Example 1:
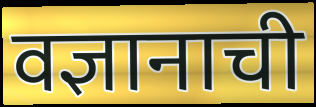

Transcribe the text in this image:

वज्ञानाची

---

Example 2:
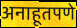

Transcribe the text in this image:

अनाहूतपणे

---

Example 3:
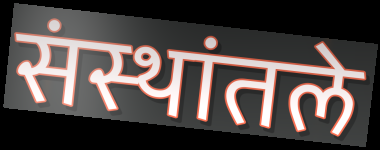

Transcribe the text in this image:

संस्थांतले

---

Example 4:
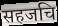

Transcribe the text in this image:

सहजचि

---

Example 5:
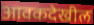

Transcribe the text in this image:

आवकदेखील